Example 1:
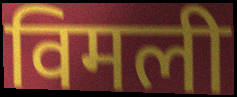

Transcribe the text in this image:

विमली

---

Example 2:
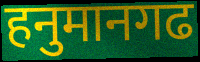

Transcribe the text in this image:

हनुमानगढ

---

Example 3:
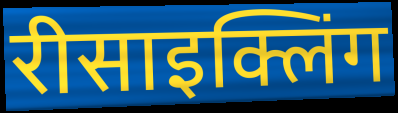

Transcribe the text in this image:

रीसाइक्लिंग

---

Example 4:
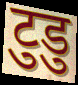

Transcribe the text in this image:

टुडु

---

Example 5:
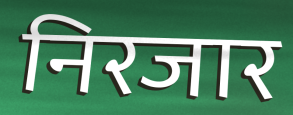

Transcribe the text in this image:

निरजार